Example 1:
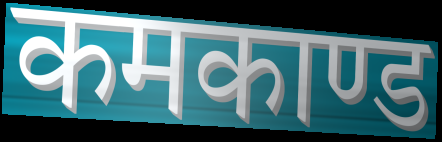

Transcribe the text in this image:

कमकाण्ड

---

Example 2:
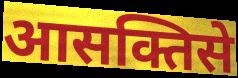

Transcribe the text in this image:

आसक्तिसे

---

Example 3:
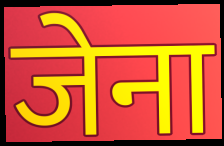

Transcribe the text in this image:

जेना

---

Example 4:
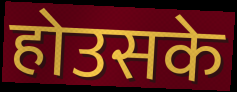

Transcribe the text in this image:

होउसके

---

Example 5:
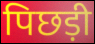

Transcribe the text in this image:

पिछड़ी